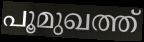
പൂമുഖത്ത്